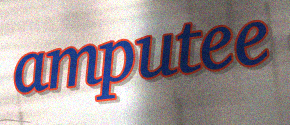
amputee